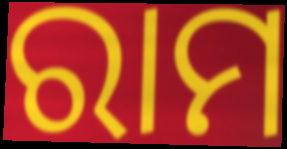
ରାମ